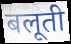
बलूती